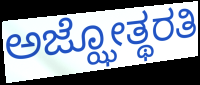
ಅಜ್ಝೋತ್ಥರತಿ